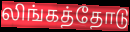
லிங்கத்தோடு